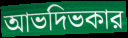
আভদিভকার